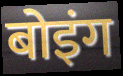
बोइंग